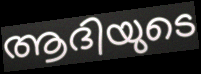
ആദിയുടെ